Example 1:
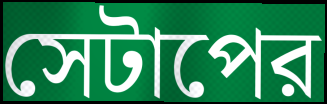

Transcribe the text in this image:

সেটাপের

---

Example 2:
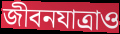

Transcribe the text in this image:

জীবনযাত্রাও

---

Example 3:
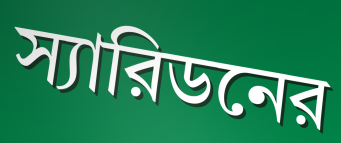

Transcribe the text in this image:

স্যারিডনের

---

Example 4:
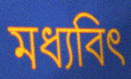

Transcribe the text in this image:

মধ্যবিৎ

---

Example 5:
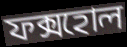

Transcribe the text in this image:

ফক্সহোল